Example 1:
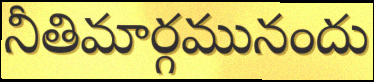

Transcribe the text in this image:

నీతిమార్గమునందు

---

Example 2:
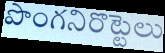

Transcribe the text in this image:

పొంగనిరొట్టెలు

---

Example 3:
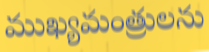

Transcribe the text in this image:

ముఖ్యమంత్రులను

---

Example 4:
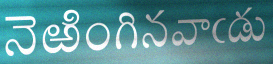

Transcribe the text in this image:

నెఱింగినవాఁడు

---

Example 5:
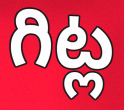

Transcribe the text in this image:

గిట్ల